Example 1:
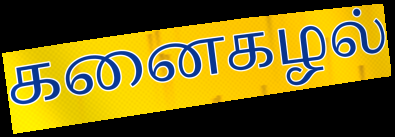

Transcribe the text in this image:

கனைகழல்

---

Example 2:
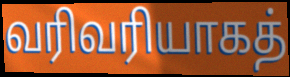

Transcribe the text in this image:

வரிவரியாகத்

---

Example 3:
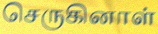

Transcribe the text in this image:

செருகினாள்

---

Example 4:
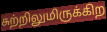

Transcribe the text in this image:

சுற்றிலுமிருக்கிற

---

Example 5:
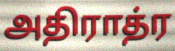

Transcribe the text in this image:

அதிராத்ர